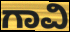
ಗಾವಿ